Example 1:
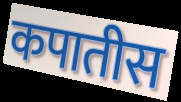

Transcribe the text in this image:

कपातीस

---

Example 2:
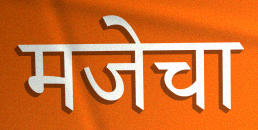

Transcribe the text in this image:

मजेचा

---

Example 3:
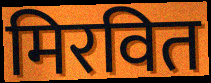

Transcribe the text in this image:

मिरवित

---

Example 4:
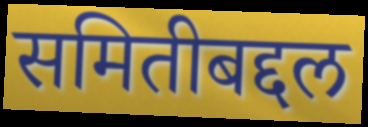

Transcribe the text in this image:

समितीबद्दल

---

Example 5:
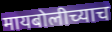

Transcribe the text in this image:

मायबोलीच्याच